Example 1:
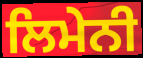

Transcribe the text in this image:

ਲਿਮੇਨੀ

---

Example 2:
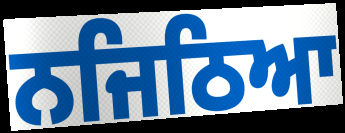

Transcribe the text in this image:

ਨਜਿਠਿਆ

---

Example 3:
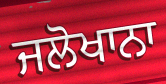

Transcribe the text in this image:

ਜਲੋਖਾਨਾ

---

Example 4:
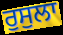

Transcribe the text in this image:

ਰੁਸੁਲਾ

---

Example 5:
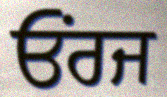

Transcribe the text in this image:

ਓਂਰਜ